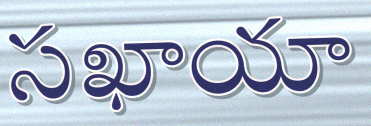
సఖాయా